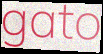
gato